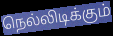
நெல்லிடிக்கும்